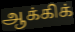
ஆக்கிக்